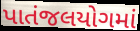
પાતંજલયોગમાં